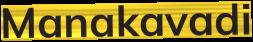
Manakavadi